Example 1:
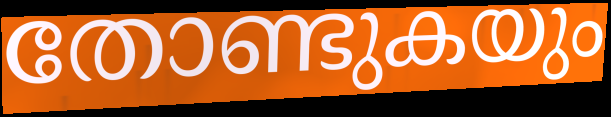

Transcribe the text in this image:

തോണ്ടുകയും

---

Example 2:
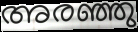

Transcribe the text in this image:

അരഞ്ഞു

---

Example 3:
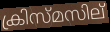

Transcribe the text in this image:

ക്രിസ്മസില്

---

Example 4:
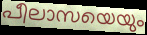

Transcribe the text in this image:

പീലാസയെയും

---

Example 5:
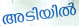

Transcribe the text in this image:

അടിയിൽ